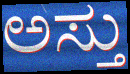
ಅಸ್ತು